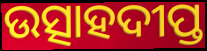
ଉତ୍ସାହଦୀପ୍ତ